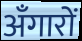
अँगारों